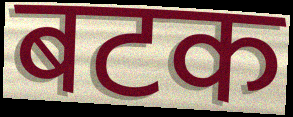
बटक